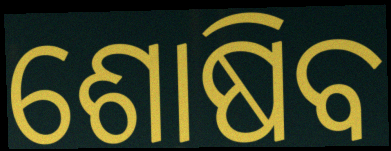
ଶୋଷିବ